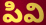
పివి